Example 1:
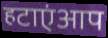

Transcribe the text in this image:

हटाएंआप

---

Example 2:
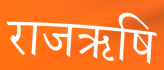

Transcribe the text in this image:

राजऋषि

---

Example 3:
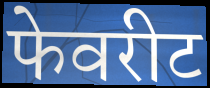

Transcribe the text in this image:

फेवरीट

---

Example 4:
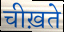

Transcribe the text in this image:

चीख़ते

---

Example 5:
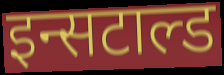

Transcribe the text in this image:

इन्सटाल्ड